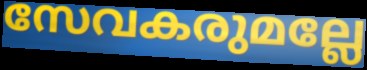
സേവകരുമല്ലേ